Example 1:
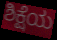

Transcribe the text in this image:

ಶಿಕ್ಷೆಯ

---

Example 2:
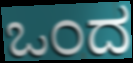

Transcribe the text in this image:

ಒಂದ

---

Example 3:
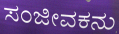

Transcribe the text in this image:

ಸಂಜೀವಕನು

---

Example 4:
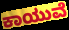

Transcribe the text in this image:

ಕಾಯುವೆ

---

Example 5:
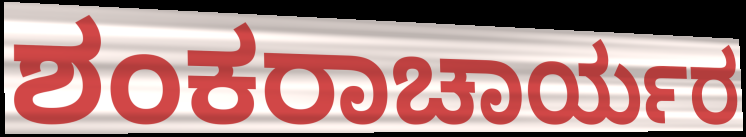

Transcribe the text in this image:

ಶಂಕರಾಚಾರ್ಯರ